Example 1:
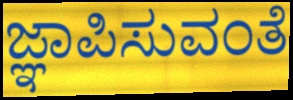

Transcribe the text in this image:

ಜ್ಞಾಪಿಸುವಂತೆ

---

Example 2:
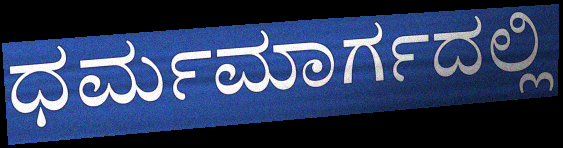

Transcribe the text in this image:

ಧರ್ಮಮಾರ್ಗದಲ್ಲಿ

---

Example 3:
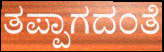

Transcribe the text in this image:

ತಪ್ಪಾಗದಂತೆ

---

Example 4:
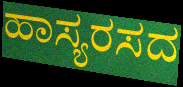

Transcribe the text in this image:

ಹಾಸ್ಯರಸದ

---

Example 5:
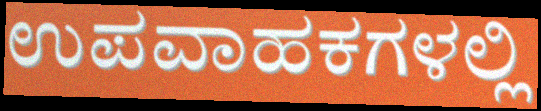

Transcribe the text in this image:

ಉಪವಾಹಕಗಳಲ್ಲಿ